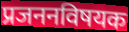
प्रजननविषयक